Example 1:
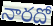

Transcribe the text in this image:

నారదో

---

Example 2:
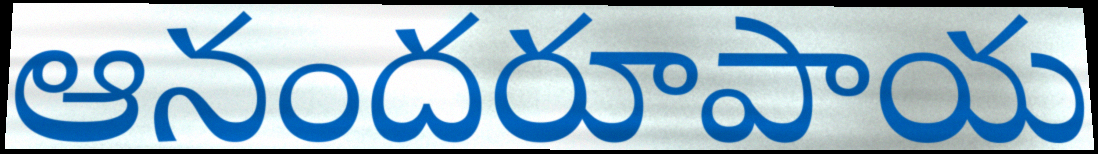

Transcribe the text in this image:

ఆనందరూపాయ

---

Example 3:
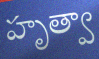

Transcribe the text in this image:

హృత్వా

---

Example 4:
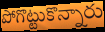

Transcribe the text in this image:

పోగొట్టుకొన్నారు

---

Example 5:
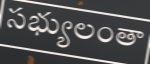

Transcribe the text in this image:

సభ్యులంతా